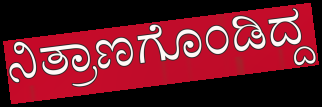
ನಿತ್ರಾಣಗೊಂಡಿದ್ದ